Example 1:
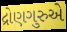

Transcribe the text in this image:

દ્રોણગુરુએ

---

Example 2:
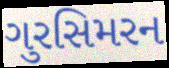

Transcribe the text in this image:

ગુરસિમરન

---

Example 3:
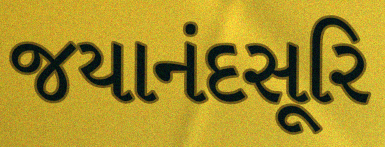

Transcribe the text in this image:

જયાનંદસૂરિ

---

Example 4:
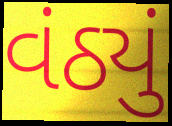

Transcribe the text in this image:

વંઠ્યું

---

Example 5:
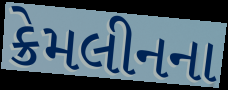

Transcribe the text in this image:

ક્રેમલીનના